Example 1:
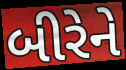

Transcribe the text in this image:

બીરેને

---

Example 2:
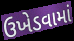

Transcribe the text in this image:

ઉખેડવામાં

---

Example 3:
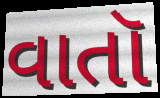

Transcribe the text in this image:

વાતૉ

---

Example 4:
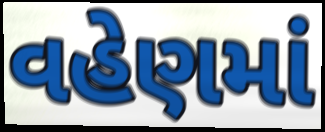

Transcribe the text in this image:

વહેણમાં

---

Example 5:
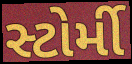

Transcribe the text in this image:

સ્ટોર્મી